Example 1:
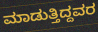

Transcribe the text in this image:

ಮಾಡುತ್ತಿದ್ದವರ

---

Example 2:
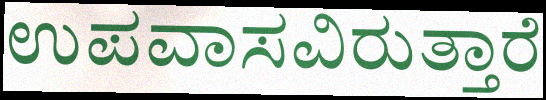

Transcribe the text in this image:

ಉಪವಾಸವಿರುತ್ತಾರೆ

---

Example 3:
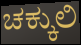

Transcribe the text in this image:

ಚಕ್ಕುಲಿ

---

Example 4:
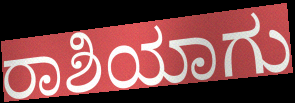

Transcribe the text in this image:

ರಾಶಿಯಾಗು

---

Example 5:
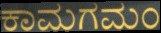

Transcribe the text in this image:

ಕಾಮಗಮಂ